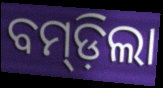
ବମ୍‍ଡ଼ିଲା